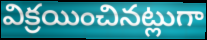
విక్రయించినట్లుగా